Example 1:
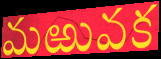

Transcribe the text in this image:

మఱువక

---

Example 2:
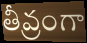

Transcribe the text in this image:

తీవ్రంగా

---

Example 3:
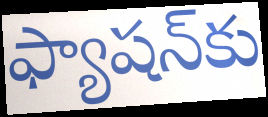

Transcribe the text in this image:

ఫ్యాషన్‌కు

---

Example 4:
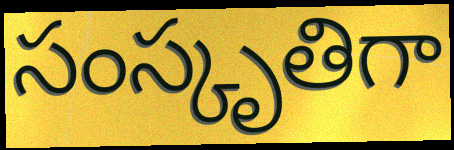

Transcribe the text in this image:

సంస్కృతిగా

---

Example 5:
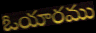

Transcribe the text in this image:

ఓయారము